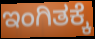
ಇಂಗಿತಕ್ಕೆ